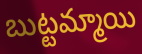
బుట్టమ్మాయి